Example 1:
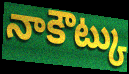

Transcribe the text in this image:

నాకౌట్కు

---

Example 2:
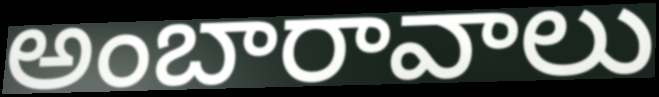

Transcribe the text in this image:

అంబారావాలు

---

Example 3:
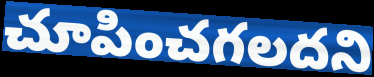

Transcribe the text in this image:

చూపించగలదని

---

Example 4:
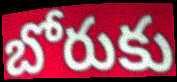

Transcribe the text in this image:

బోరుకు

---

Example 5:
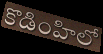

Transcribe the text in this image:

కొడింహిలో